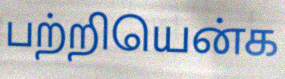
பற்றியென்க